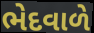
ભેદવાળે